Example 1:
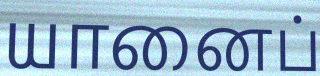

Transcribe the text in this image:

யானைப்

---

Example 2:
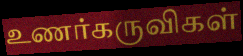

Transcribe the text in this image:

உணர்கருவிகள்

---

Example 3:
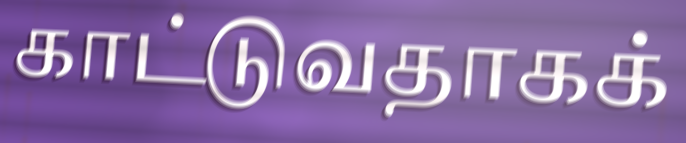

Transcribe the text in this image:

காட்டுவதாகக்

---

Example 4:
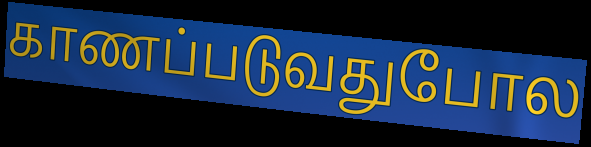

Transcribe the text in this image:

காணப்படுவதுபோல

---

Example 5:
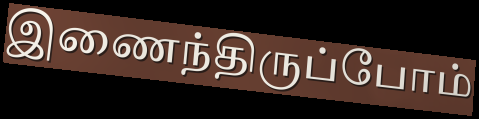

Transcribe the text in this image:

இணைந்திருப்போம்